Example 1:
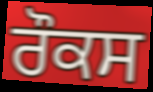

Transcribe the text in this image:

ਰੌਕਸ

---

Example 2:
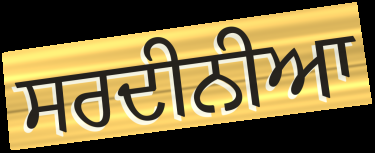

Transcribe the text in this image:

ਸਰਦੀਨੀਆ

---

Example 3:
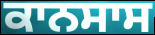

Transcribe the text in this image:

ਕਾਨਸਾਸ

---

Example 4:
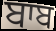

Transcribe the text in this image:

ਬਾਬ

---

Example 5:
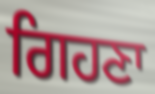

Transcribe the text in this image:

ਗਿਹਣਾ